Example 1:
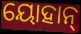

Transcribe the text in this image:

ୟୋହାନ୍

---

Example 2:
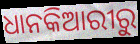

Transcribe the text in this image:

ଧାନକିଆରୀରୁ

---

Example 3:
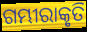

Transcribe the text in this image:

ଗମ୍ଭୀରାକୃତି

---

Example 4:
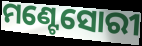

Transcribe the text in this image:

ମଣ୍ଟେସୋରୀ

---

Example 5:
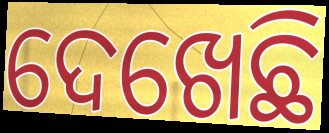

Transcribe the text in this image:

ଦେଖେଛି